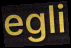
egli